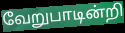
வேறுபாடின்றி